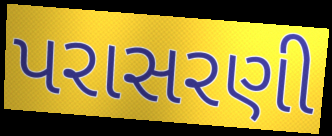
પરાસરણી